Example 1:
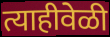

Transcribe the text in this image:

त्याहीवेळी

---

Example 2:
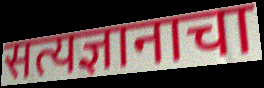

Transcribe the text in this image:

सत्यज्ञानाचा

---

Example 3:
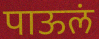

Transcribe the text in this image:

पाऊलं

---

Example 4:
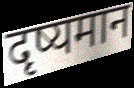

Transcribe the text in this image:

दृष्यमान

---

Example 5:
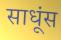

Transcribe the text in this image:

साधूंस